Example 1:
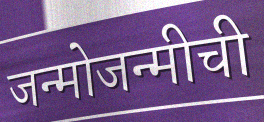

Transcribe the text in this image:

जन्मोजन्मीची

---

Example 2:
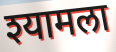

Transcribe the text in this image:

श्यामला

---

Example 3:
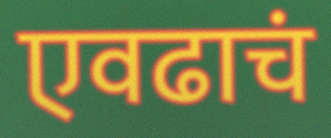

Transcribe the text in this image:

एवढाचं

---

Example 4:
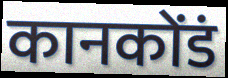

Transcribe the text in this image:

कानकोंडं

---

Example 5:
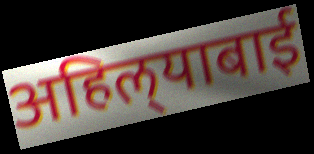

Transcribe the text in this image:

अहिल्याबाई